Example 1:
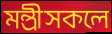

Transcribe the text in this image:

মন্ত্ৰীসকলে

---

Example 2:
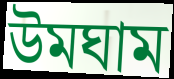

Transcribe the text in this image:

উমঘাম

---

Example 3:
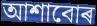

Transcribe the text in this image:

আশাবোৰ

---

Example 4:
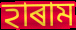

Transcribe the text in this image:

হাৰাম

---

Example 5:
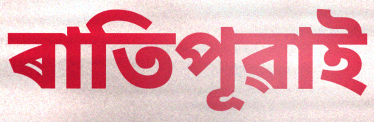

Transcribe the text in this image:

ৰাতিপূৱাই